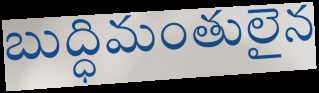
బుద్ధిమంతులైన